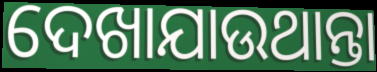
ଦେଖାଯାଉଥାନ୍ତା